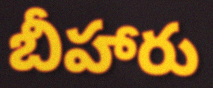
బీహారు